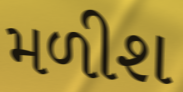
મળીશ